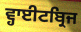
ਵ੍ਹਾਈਟਬ੍ਰਿਜ